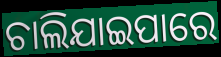
ଚାଲିଯାଇପାରେ